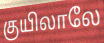
குயிலாலே